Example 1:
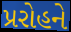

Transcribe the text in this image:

પ્રરોહને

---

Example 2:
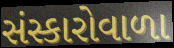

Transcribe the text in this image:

સંસ્કારોવાળા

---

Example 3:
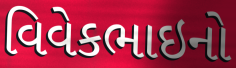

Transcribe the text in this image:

વિવેકભાઇનો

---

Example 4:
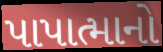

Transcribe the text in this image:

પાપાત્માનો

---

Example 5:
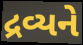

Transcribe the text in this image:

દ્રવ્યને